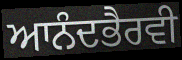
ਆਨੰਦਭੈਰਵੀ